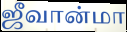
ஜீவான்மா